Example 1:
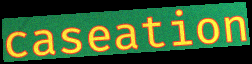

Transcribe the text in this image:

caseation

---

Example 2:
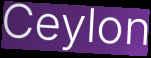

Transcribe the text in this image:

Ceylon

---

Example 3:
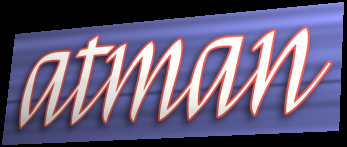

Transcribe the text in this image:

atman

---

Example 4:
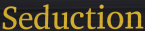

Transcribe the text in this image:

Seduction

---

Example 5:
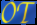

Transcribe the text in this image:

OT